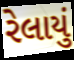
રેલાયું